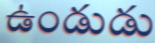
ఉండుడు